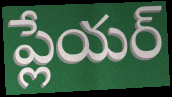
ప్లేయర్